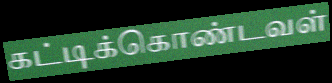
கட்டிக்கொண்டவள்